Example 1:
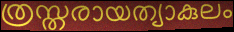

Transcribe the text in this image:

ത്രസ്തരായത്യാകുലം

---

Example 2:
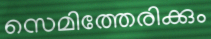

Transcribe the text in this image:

സെമിത്തേരിക്കും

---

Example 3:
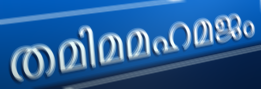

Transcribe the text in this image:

തമിമമഹമജം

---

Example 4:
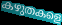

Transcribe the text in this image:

കഴുതകളെ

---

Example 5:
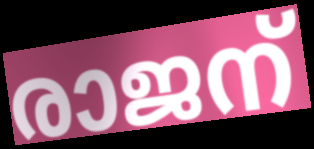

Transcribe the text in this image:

രാജന്